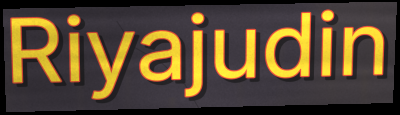
Riyajudin